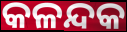
କଳନ୍ଦକ